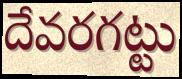
దేవరగట్టు